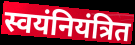
स्वयंनियंत्रित